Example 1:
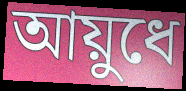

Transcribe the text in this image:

আয়ুধে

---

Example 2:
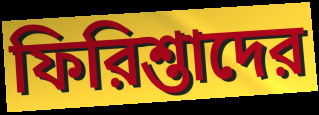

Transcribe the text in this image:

ফিরিশ্তাদের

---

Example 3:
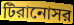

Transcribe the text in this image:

টিরানোসর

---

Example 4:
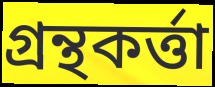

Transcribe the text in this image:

গ্রন্থকর্ত্তা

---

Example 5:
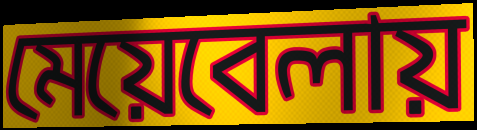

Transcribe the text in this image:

মেয়েবেলায়